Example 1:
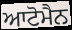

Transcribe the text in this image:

ਆਟੋਮੈਨ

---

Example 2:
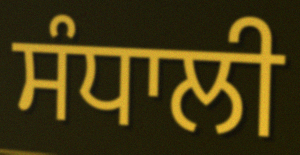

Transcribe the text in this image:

ਸੰਧਾਲੀ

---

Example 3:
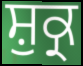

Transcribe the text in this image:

ਸ਼ੁਕ੍ਰ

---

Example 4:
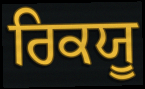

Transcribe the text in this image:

ਰਿਕਯੂ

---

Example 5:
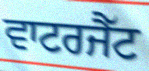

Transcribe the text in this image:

ਵਾਟਰਜੈੱਟ